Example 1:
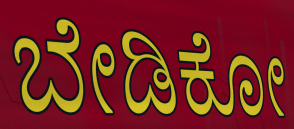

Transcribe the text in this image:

ಬೇಡಿಕೋ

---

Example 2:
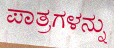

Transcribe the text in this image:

ಪಾತ್ರಗಳನ್ನು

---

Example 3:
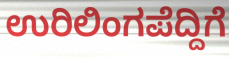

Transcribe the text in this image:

ಉರಿಲಿಂಗಪೆದ್ದಿಗೆ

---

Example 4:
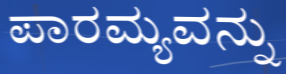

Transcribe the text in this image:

ಪಾರಮ್ಯವನ್ನು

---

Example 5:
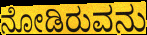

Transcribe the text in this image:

ನೋಡಿರುವನು